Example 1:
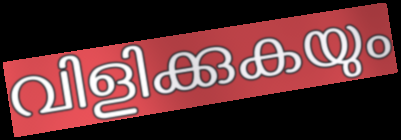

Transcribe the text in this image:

വിളിക്കുകയും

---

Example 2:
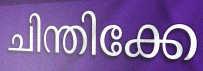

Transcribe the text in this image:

ചിന്തിക്കേ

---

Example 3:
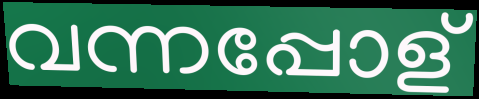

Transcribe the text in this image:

വന്നപ്പോള്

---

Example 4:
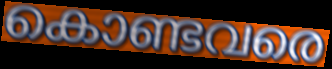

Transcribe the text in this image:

കൊണ്ടവരെ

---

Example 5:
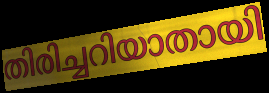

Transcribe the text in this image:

തിരിച്ചറിയാതായി